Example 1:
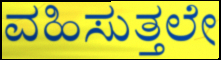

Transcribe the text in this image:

ವಹಿಸುತ್ತಲೇ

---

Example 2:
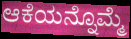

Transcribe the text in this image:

ಆಕೆಯನ್ನೊಮ್ಮೆ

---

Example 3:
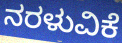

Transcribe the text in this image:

ನರಳುವಿಕೆ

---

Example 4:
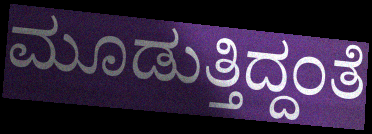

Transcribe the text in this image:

ಮೂಡುತ್ತಿದ್ದಂತೆ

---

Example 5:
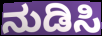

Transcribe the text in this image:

ನುಡಿಸಿ